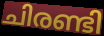
ചിരണ്ടി